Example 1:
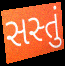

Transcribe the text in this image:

સસ્તું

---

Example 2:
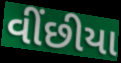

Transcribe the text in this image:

વીંછીયા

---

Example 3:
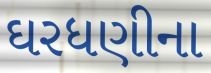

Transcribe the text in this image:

ઘરધણીના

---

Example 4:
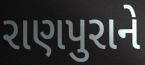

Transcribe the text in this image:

રાણપુરાને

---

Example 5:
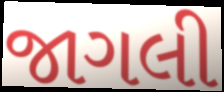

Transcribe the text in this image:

જાગલી